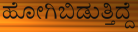
ಹೋಗಿಬಿಡುತ್ತಿದ್ದೆ